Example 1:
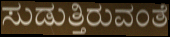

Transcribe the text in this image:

ಸುಡುತ್ತಿರುವಂತೆ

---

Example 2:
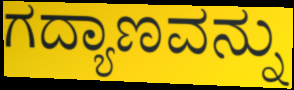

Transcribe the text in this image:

ಗದ್ಯಾಣವನ್ನು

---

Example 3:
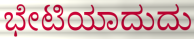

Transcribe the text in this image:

ಭೇಟಿಯಾದುದು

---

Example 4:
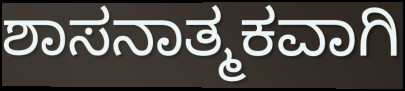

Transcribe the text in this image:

ಶಾಸನಾತ್ಮಕವಾಗಿ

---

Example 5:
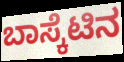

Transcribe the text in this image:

ಬಾಸ್ಕೆಟಿನ